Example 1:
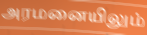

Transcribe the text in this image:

அரமனையிலும்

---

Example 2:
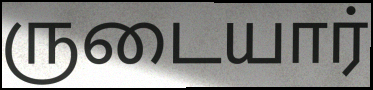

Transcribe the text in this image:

ருடையார்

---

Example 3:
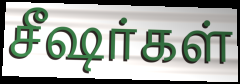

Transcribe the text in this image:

சீஷர்கள்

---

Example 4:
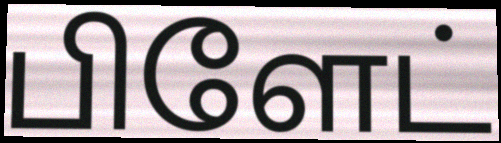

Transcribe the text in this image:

பிளேட்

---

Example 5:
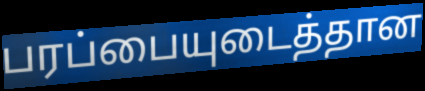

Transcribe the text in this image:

பரப்பையுடைத்தான